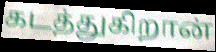
கடத்துகிறான்